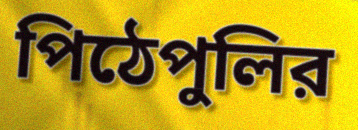
পিঠেপুলির